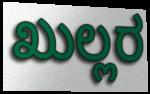
ಖುಲ್ಲರ